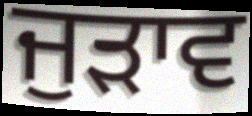
ਜੁੜਾਵ